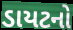
ડાયટનો